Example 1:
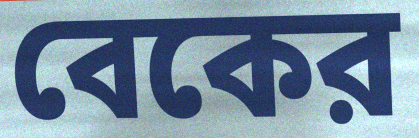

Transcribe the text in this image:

বেকের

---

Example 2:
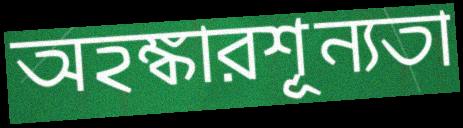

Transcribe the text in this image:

অহঙ্কারশূন্যতা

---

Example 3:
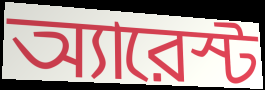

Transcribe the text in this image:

অ্যারেস্ট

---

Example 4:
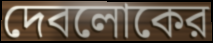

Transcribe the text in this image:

দেবলোকের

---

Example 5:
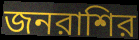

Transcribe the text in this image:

জনরাশির